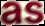
as